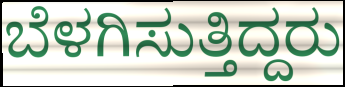
ಬೆಳಗಿಸುತ್ತಿದ್ದರು